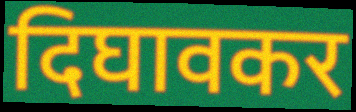
दिघावकर